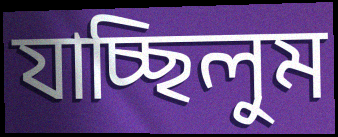
যাচ্ছিলুম